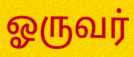
ஓருவர்